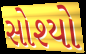
સોશ્યો